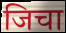
जिचा